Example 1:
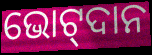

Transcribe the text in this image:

ଭୋଟ୍‌ଦାନ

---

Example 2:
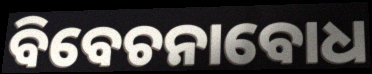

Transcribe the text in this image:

ବିବେଚନାବୋଧ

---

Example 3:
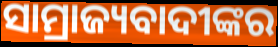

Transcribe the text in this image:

ସାମ୍ରାଜ୍ୟବାଦୀଙ୍କର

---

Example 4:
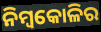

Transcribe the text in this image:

ନିମ୍ବକୋଳିର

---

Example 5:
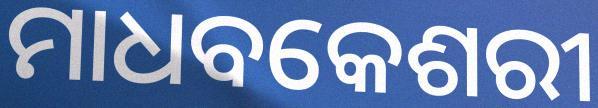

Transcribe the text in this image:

ମାଧବକେଶରୀ